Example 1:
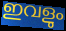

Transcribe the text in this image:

ഇവളും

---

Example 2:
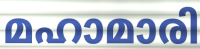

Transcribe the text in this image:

മഹാമാരി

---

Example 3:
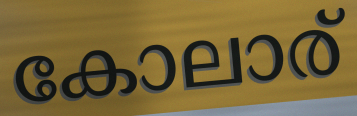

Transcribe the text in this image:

കോലാര്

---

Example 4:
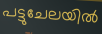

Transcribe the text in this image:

പട്ടുചേലയിൽ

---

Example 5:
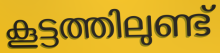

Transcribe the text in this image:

കൂട്ടത്തിലുണ്ട്